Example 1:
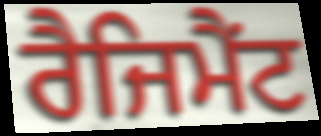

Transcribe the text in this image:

ਰੈਜਿਮੈਂਟ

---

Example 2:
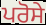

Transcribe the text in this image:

ਪਰੋਸੇ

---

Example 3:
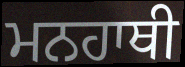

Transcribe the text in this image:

ਮਨਹਾਥੀ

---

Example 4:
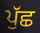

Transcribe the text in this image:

ਪੁੱਛ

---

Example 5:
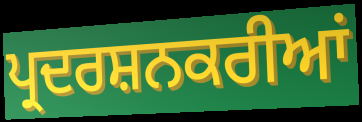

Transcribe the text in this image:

ਪ੍ਰਦਰਸ਼ਨਕਰੀਆਂ